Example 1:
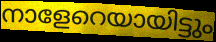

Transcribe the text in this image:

നാളേറെയായിട്ടും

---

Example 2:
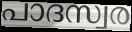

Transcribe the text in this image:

പാദസ്വര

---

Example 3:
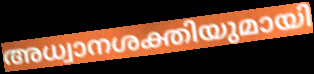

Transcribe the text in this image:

അധ്വാനശക്തിയുമായി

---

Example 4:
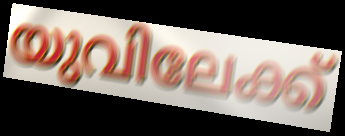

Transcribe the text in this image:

യുവിലേക്ക്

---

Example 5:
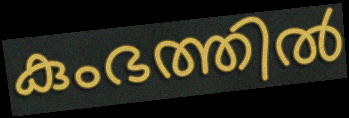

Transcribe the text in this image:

കുംഭത്തിൽ